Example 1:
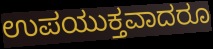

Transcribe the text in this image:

ಉಪಯುಕ್ತವಾದರೂ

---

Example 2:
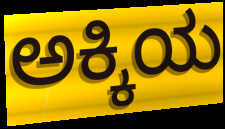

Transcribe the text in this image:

ಅಕ್ಕಿಯ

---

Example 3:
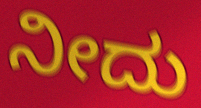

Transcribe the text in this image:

ನೀದು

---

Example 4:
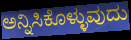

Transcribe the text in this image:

ಅನ್ನಿಸಿಕೊಳ್ಳುವುದು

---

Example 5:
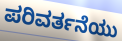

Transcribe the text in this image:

ಪರಿವರ್ತನೆಯು